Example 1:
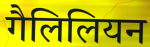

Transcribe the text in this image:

गैलिलियन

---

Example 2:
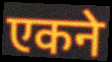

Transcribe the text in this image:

एकने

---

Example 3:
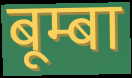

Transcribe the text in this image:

बूम्बा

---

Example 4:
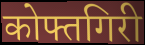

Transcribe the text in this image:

कोफ्तगिरी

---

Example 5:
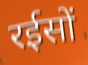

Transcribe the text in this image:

रईसों